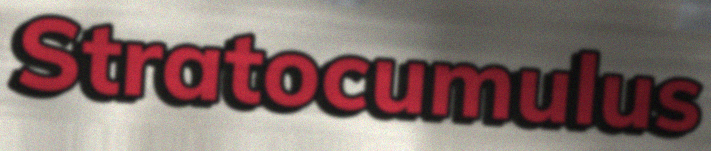
Stratocumulus